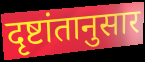
दृष्टांतानुसार